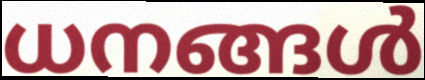
ധനങ്ങൾ